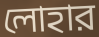
লোহার